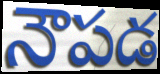
నౌపడ